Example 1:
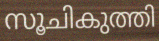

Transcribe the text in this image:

സൂചികുത്തി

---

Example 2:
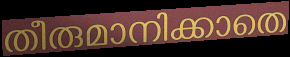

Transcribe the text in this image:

തീരുമാനിക്കാതെ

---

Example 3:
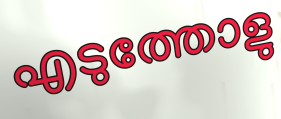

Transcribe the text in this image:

എടുത്തോളു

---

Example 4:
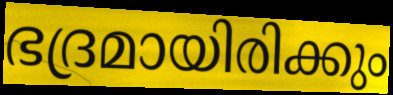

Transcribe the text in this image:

ഭദ്രമായിരിക്കും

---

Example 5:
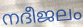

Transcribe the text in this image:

നദീജലം